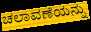
ಚಲಾವಣೆಯನ್ನು